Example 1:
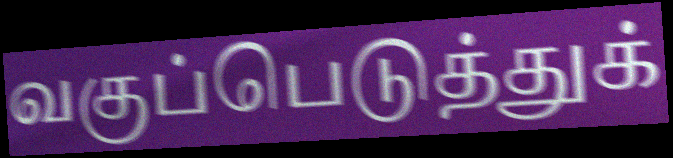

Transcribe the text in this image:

வகுப்பெடுத்துக்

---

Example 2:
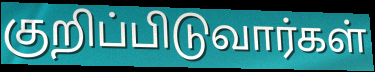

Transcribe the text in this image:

குறிப்பிடுவார்கள்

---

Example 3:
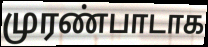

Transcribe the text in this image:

முரண்பாடாக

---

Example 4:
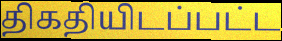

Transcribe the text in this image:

திகதியிடப்பட்ட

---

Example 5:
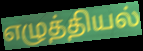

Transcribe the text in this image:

எழுத்தியல்